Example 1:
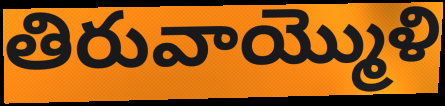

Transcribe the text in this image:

తిరువాయ్మొళి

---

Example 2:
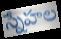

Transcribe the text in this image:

స్నేహల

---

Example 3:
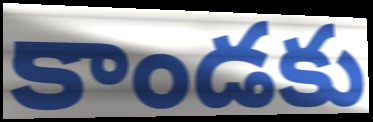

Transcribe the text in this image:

కాండకు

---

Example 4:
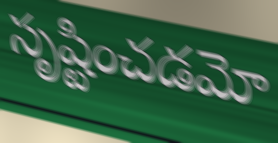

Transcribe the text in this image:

సృష్టించడమో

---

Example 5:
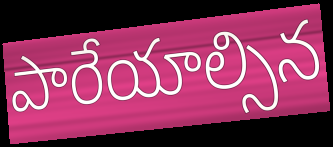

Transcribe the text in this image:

పారేయాల్సిన